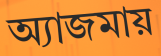
অ্যাজমায়